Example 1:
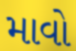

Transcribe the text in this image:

માવો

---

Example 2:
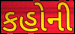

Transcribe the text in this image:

કહોની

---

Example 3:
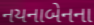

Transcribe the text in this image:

નયનાબેનના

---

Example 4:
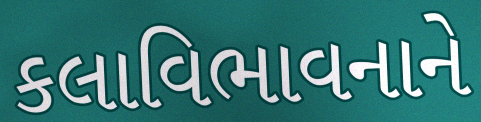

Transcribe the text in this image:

કલાવિભાવનાને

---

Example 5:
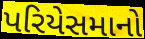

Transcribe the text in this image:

પરિયેસમાનો